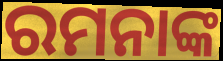
ରମନାଙ୍କ